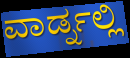
ವಾರ್ಡ್ನಲ್ಲಿ